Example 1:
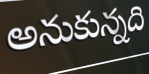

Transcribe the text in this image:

అనుకున్నది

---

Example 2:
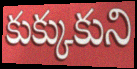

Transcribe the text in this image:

కుక్కుకుని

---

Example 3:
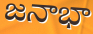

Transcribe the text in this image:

జనాభా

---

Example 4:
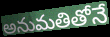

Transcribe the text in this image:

అనుమతితోనే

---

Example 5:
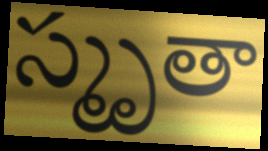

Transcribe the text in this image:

స్మృతా